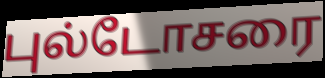
புல்டோசரை